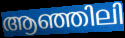
ആഞ്ഞിലി